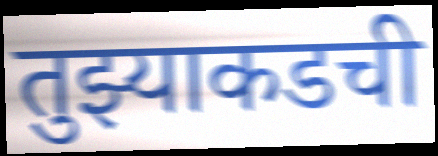
तुझ्याकडची